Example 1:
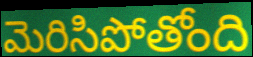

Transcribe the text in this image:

మెరిసిపోతోంది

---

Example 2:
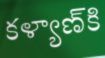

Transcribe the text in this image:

కళ్యాణ్‍కి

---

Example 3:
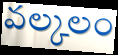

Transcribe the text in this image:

వల్కలం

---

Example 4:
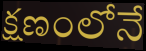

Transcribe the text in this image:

క్షణంలోనే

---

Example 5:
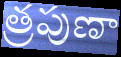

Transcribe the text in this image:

త్రపుణా